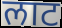
लाट